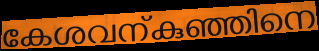
കേശവന്കുഞ്ഞിനെ